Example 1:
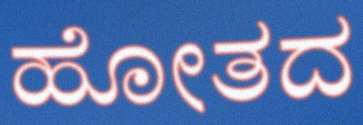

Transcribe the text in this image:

ಹೋತದ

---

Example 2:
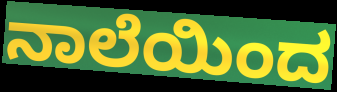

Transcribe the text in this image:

ನಾಲೆಯಿಂದ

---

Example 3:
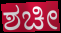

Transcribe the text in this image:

ಶಚೀ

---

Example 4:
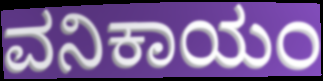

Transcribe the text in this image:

ವನಿಕಾಯಂ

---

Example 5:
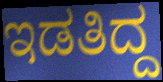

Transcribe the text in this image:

ಇಡತಿದ್ದ